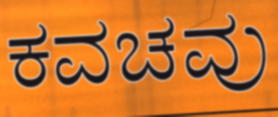
ಕವಚವು